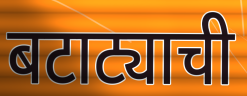
बटाट्याची